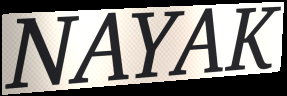
NAYAK